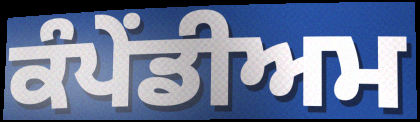
ਕੰਪੇਂਡੀਅਮ